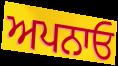
ਅਪਨਾਓ